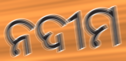
ନଦୀମ